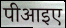
पीआइए